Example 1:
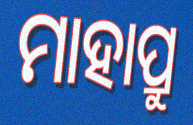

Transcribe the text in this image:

ମାହାପ୍ରୁ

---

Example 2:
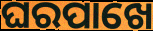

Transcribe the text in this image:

ଘରପାଖେ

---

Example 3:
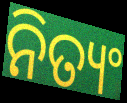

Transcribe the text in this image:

ନିତ୍ୟଂ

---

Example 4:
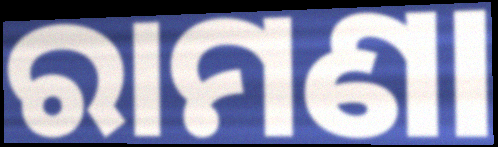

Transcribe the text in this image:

ରାମଣା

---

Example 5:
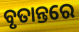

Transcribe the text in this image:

ବୃତାନ୍ତରେ